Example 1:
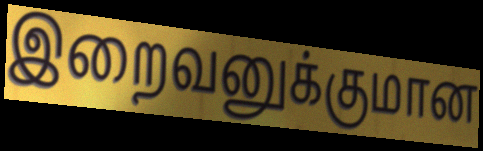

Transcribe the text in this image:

இறைவனுக்குமான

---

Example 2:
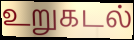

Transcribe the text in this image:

உறுகடல்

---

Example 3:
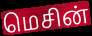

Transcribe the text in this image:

மெசின்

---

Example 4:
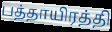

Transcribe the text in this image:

பத்தாயிரத்தி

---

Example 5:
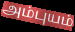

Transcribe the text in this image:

அம்புயம்